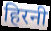
हिरनी